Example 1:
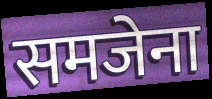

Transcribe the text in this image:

समजेना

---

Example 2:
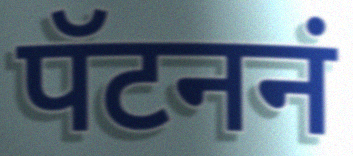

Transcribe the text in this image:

पॅटननं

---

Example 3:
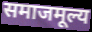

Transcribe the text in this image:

समाजमूल्य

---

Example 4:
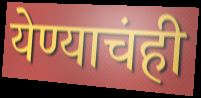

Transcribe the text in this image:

येण्याचंही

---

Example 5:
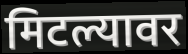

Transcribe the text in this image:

मिटल्यावर